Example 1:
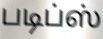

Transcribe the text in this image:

படிப்ஸ்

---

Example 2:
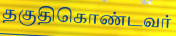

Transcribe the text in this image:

தகுதிகொண்டவர்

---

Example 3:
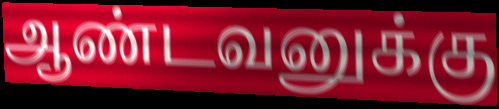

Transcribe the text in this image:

ஆண்டவனுக்கு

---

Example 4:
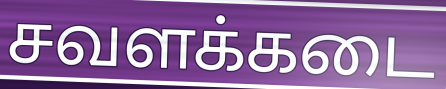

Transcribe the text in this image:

சவளக்கடை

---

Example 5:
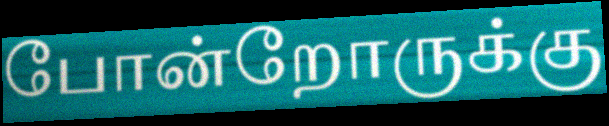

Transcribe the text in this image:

போன்றோருக்கு